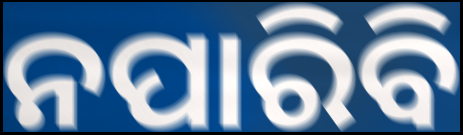
ନପାରିବି